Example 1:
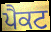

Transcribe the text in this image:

ਪੈਕਟ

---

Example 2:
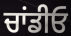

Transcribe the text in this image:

ਚਾਂਡੀਓ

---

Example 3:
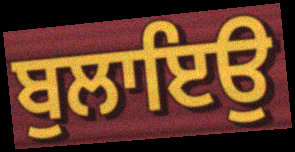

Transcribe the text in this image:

ਬੁਲਾਇਉ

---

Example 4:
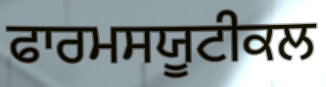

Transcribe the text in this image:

ਫਾਰਮਸਯੂਟੀਕਲ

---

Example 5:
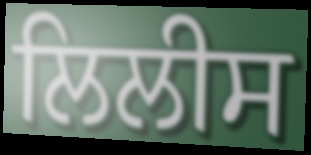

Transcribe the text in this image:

ਲਿਲੀਸ